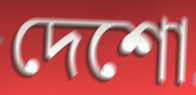
দেশো